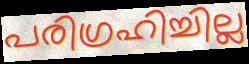
പരിഗ്രഹിച്ചില്ല